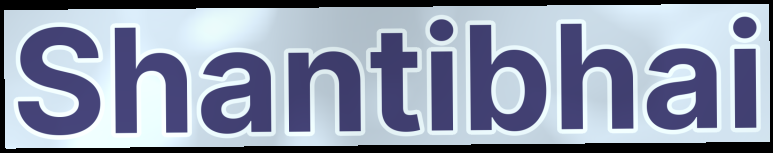
Shantibhai